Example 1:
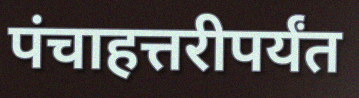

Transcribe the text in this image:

पंचाहत्तरीपर्यंत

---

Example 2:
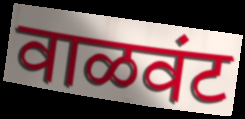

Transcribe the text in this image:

वाळवंट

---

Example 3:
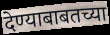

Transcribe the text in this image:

देण्याबाबतच्या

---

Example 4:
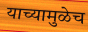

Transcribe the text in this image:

याच्यामुळेच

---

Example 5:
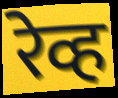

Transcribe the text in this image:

रेव्ह